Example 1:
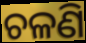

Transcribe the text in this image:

ଚଳଣି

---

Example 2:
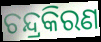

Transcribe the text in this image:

ଚନ୍ଦ୍ରକିରଣ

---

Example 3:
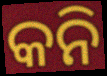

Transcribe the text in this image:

କନି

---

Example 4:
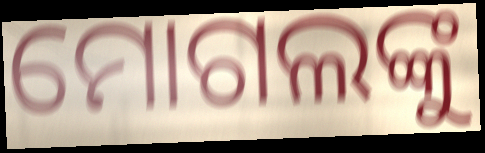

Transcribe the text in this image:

ମୋଗଲଙ୍କୁ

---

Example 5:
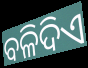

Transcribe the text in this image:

ବଳିଦିଏ